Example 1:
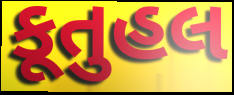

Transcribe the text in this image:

કૂતુહલ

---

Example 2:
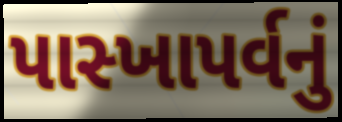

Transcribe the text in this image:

પાસ્ખાપર્વનું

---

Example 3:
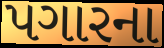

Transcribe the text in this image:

પગારના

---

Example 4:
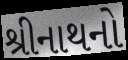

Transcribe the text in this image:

શ્રીનાથનો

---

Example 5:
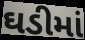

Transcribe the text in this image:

ઘડીમાં